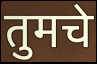
तुमचे